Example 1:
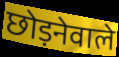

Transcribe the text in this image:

छोड़नेवाले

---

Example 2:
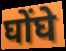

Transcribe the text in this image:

घोंघे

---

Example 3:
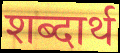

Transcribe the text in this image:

शब्दार्थ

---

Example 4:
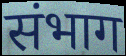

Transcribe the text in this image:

संभाग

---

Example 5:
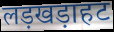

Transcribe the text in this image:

लड़खड़ाहट